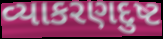
વ્યાકરણદુષ્ટ